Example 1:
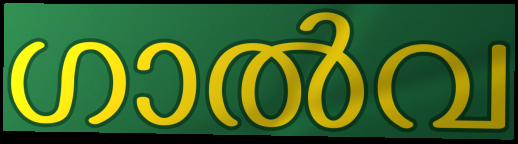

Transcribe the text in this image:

ഗാൽവ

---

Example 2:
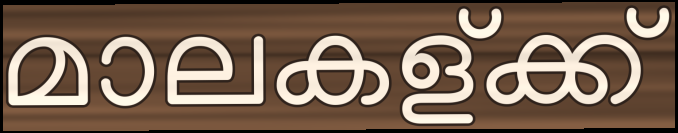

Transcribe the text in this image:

മാലകള്ക്ക്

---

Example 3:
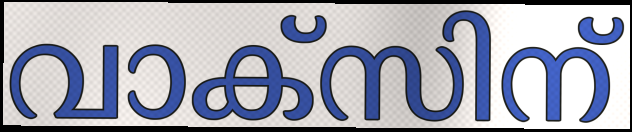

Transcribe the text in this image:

വാക്സിന്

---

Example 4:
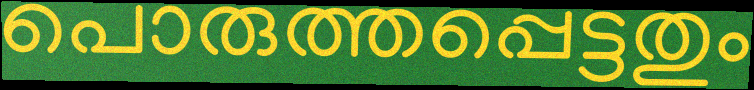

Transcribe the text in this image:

പൊരുത്തപ്പെട്ടതും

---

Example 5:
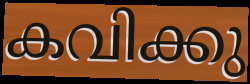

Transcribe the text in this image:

കവിക്കു